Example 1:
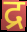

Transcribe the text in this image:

द्र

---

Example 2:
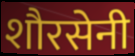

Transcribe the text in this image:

शौरसेनी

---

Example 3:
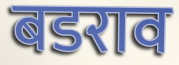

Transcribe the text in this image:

बडराव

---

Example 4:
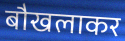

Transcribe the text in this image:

बौखलाकर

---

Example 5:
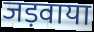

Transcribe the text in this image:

जड़वाया